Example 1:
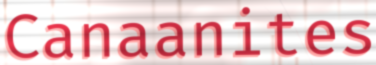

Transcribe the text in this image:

Canaanites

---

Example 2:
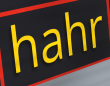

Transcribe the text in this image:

hahr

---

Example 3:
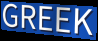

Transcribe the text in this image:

GREEK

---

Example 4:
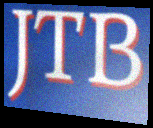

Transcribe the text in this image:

JTB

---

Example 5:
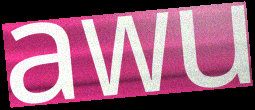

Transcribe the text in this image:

awu